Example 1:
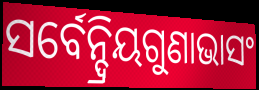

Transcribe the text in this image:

ସର୍ବେନ୍ଦ୍ରିୟଗୁଣାଭାସଂ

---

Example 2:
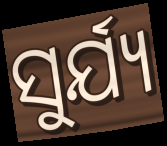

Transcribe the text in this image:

ସୁର୍ଯ୍ୟ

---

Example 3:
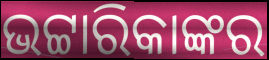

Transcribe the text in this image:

ଭଟ୍ଟାରିକାଙ୍କର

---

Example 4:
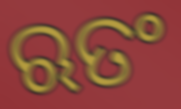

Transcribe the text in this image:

ଋତଂ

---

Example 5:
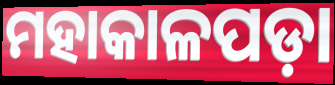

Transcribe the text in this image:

ମହାକାଳପଡ଼ା